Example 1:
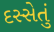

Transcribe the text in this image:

દસ્સેતું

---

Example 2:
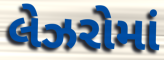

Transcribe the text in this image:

લેઝરોમાં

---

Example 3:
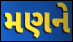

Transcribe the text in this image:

મણને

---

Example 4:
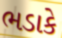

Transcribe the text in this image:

ભડાકે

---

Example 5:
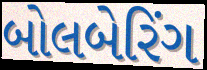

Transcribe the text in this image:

બોલબેરિંગ